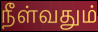
நீள்வதும்